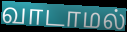
வாடாமல்